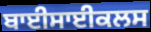
ਬਾਈਸਾਈਕਲਸ